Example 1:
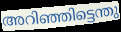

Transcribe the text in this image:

അറിഞ്ഞിട്ടെന്തു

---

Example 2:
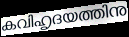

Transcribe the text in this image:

കവിഹൃദയത്തിനു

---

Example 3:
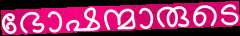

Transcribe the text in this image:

ഭോഷന്മാരുടെ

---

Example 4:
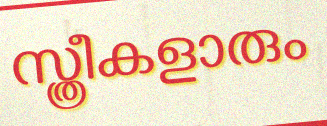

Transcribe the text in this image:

സ്ത്രീകളാരും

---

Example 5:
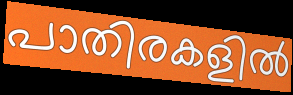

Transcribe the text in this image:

പാതിരകളിൽ